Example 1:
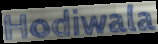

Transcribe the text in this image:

Hodiwala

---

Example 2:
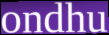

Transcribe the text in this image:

ondhu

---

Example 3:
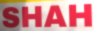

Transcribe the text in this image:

SHAH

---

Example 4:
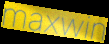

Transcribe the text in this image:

maxwin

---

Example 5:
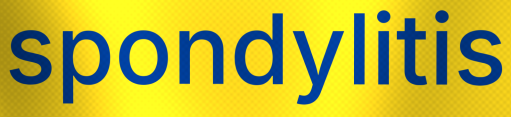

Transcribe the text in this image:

spondylitis